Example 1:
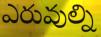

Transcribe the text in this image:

ఎరువుల్ని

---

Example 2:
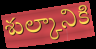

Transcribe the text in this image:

శుల్కానికి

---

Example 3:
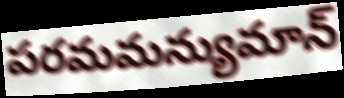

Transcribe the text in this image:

పరమమన్యుమాన్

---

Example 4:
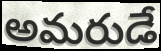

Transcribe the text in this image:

అమరుడే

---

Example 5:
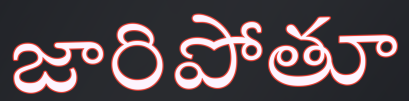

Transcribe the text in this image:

జారిపోతూ